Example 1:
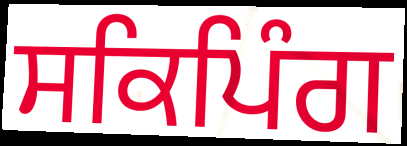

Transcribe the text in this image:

ਸਕਿਪਿੰਗ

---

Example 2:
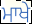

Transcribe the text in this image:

ਮਾਖੇ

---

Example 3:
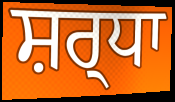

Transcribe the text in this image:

ਸ਼ਰ੍ਧਾ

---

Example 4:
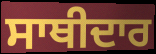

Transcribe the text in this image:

ਸਾਥੀਦਾਰ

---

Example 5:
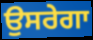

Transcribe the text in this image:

ਉਸਰੇਗਾ